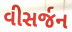
વીસર્જન